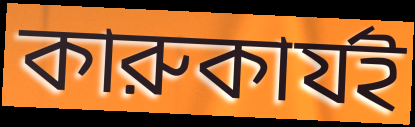
কারুকার্যই